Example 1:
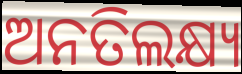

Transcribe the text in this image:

ଅନତିଲକ୍ଷ୍ୟ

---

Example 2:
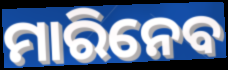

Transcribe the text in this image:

ମାରିନେବ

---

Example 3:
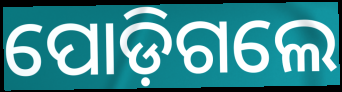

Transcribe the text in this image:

ପୋଡ଼ିଗଲେ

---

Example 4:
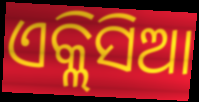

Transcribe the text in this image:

ଏକ୍ଲିସିଆ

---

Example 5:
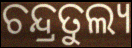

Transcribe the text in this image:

ଚନ୍ଦ୍ରତୁଲ୍ୟ